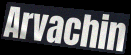
Arvachin